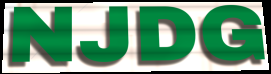
NJDG